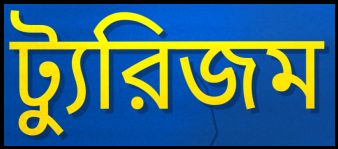
ট্যুরিজম